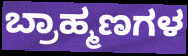
ಬ್ರಾಹ್ಮಣಗಳ